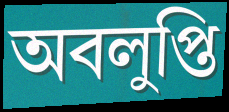
অবলুপ্তি